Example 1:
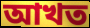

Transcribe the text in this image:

আখত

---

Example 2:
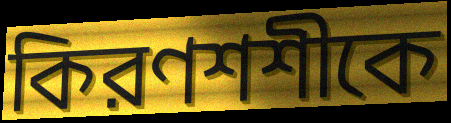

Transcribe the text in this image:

কিরণশশীকে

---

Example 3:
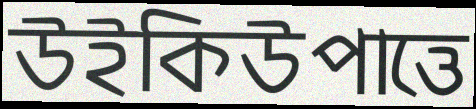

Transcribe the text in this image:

উইকিউপাত্তে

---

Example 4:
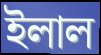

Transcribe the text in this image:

ইলাল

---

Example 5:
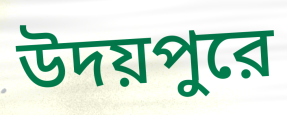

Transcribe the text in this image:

উদয়পুরে